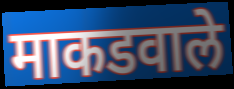
माकडवाले